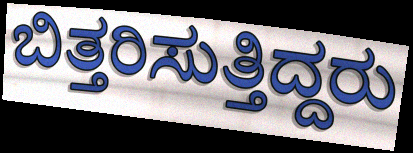
ಬಿತ್ತರಿಸುತ್ತಿದ್ದರು